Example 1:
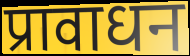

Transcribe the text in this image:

प्रावाधन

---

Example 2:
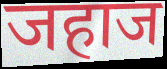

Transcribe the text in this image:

जहाज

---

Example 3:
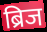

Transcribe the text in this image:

ब्रिज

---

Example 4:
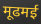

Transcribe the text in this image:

मूढमई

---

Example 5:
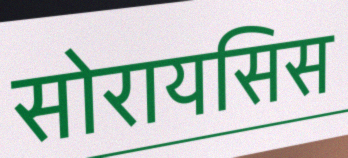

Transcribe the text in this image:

सोरायसिस